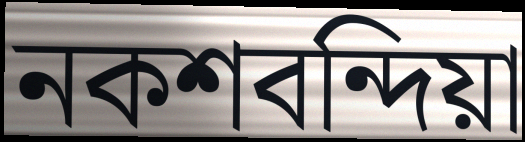
নকশবন্দিয়া